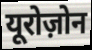
यूरोज़ोन